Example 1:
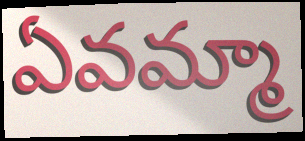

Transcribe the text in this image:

ఏవమ్మా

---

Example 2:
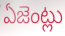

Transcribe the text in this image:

ఏజెంట్లు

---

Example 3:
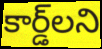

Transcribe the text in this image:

కార్డ్‌లని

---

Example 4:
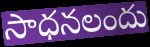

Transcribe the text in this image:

సాధనలందు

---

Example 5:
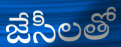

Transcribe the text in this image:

జేసీలతో